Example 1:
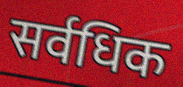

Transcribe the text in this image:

सर्वधिक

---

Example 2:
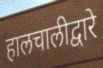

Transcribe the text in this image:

हालचालीद्वारे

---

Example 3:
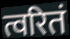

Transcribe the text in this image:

त्वरितं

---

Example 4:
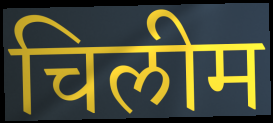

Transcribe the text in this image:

चिलीम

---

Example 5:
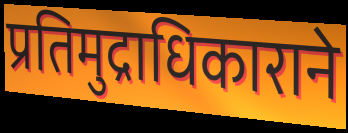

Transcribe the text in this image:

प्रतिमुद्राधिकाराने